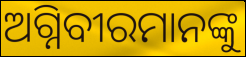
ଅଗ୍ନିବୀରମାନଙ୍କୁ